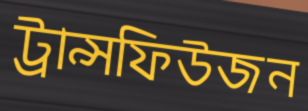
ট্ৰান্সফিউজন